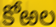
కోఱల